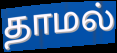
தாமல்